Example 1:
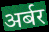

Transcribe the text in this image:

अर्बर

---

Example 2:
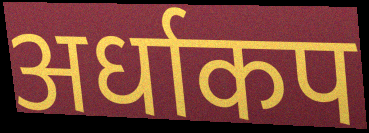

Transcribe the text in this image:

अर्धाकप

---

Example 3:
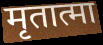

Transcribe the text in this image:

मृतात्मा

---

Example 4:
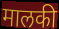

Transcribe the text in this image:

मालकी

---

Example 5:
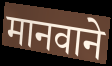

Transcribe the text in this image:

मानवाने